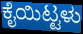
ಕೈಯಿಟ್ಟಳು